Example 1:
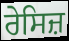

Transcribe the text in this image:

ਰੇਸਿਜ਼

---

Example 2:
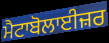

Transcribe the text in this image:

ਮੈਟਾਬੋਲਾਈਜ਼ਰ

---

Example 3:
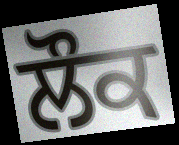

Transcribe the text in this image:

ਲੌਕ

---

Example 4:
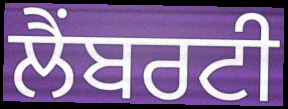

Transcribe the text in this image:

ਲੈਂਬਰਟੀ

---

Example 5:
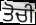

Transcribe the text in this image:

ਤੋਚੀ